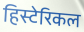
हिस्टेरिकल